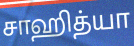
சாஹித்யா